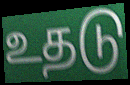
உதடு